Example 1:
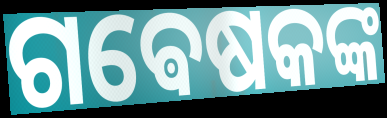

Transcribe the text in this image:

ଗଵେଷକଙ୍କ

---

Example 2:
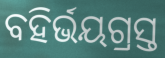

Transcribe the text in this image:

ବହିର୍ଭୟଗ୍ରସ୍ତ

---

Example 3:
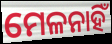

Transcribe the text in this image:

ମେଳନାହିଁ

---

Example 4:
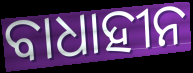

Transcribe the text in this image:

ବାଧାହୀନ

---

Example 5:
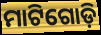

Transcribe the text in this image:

ମାଟିଗୋଡ଼ି